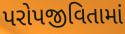
પરોપજીવિતામાં